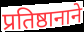
प्रतिष्ठानाने